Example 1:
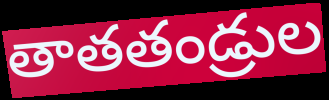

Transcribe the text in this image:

తాతతండ్రుల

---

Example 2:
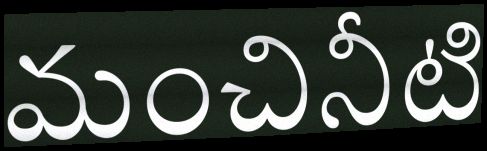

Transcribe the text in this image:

మంచినీటి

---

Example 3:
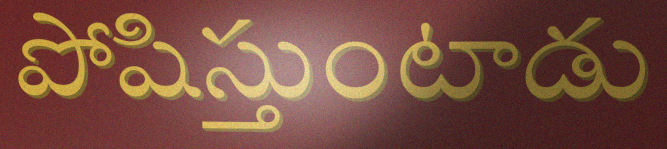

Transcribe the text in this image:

పోషిస్తుంటాడు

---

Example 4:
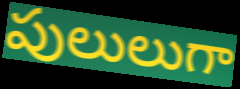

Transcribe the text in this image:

పులులుగా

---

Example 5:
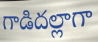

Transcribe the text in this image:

గాడిదల్లాగా